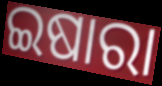
ଇଷାରା